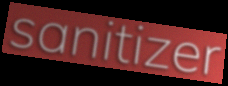
sanitizer